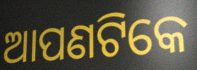
ଆପଣଟିକେ